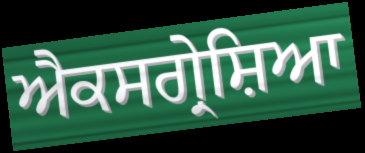
ਐਕਸਗ੍ਰੇਸ਼ਿਆ